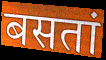
बसतां